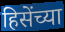
हिसेंच्या